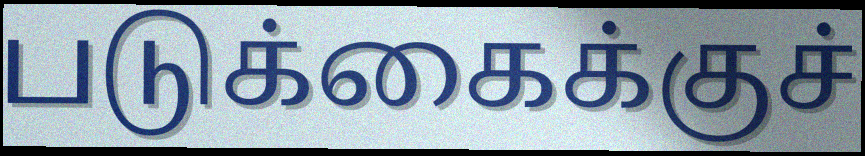
படுக்கைக்குச்